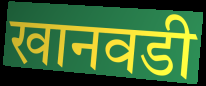
खानवडी